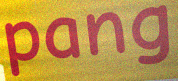
pang